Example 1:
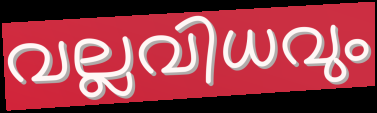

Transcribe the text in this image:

വല്ലവിധവും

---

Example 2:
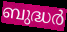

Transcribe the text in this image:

ബുദ്ധർ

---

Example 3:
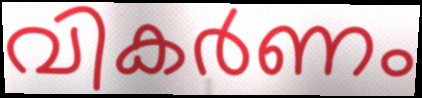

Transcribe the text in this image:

വികർണം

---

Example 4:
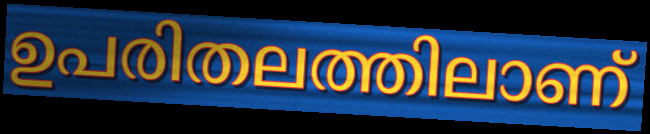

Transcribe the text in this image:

ഉപരിതലത്തിലാണ്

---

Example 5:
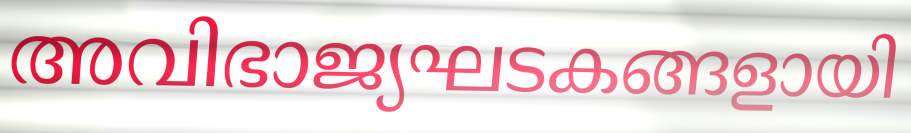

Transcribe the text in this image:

അവിഭാജ്യഘടകങ്ങളായി